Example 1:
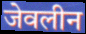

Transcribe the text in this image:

जेवलीन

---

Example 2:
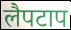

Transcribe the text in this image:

लैपटाप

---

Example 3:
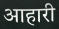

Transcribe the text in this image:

आहारी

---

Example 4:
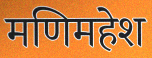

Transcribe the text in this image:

मणिमहेश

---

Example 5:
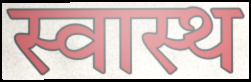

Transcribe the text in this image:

स्‍वास्‍थ